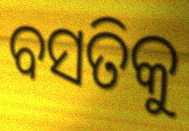
ବସତିକୁ